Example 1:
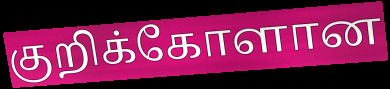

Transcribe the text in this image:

குறிக்கோளான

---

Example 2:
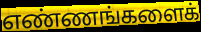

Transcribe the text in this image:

எண்ணங்களைக்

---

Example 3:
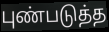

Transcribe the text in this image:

புண்படுத்த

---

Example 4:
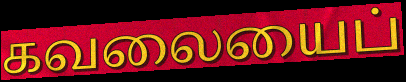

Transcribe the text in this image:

கவலையைப்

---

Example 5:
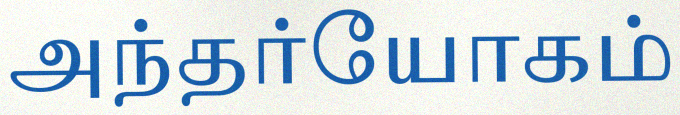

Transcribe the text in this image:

அந்தர்யோகம்